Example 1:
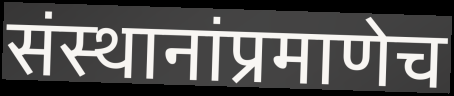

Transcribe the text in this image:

संस्थानांप्रमाणेच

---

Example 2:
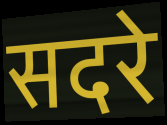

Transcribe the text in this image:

सदरे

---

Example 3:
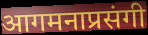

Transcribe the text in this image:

आगमनाप्रसंगी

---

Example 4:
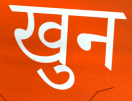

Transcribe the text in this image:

खुन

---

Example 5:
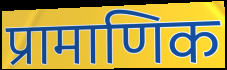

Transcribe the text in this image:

प्रामाणिक